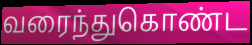
வரைந்துகொண்ட